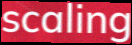
scaling